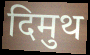
दिमुथ